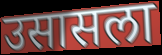
उसासला